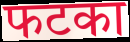
फटका